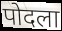
पोदला